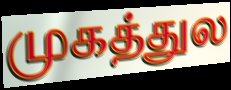
முகத்துல